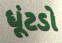
ધૂંટડો